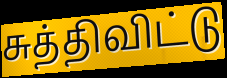
சுத்திவிட்டு